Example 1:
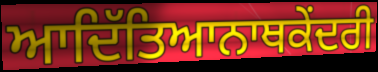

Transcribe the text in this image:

ਆਦਿੱਤਿਆਨਾਥਕੇਂਦਰੀ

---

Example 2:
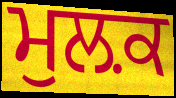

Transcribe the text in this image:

ਮੁਲ਼ਕ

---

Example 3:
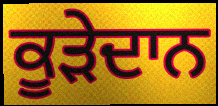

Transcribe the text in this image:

ਕੂੜੇਦਾਨ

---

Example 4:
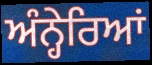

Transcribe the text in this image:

ਅੰਨ੍ਹੇਰਿਆਂ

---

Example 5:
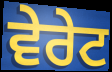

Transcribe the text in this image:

ਵੇਰੇਟ